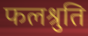
फलश्रुति